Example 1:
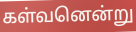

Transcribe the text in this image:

கள்வனென்று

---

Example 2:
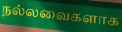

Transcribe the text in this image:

நல்லவைகளாக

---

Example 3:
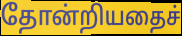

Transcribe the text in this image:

தோன்றியதைச்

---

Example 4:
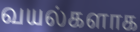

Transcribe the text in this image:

வயல்களாக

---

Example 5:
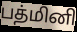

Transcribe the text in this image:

பத்மினி